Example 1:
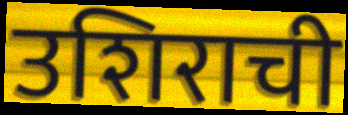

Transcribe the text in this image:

उशिराची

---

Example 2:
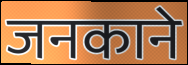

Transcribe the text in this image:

जनकाने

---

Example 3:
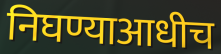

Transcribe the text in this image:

निघण्याआधीच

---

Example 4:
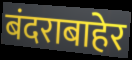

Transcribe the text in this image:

बंदराबाहेर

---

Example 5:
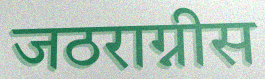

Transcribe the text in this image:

जठराग्नीस